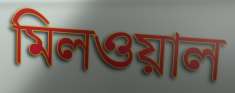
মিলওয়াল